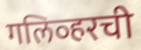
गलिव्हरची